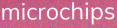
microchips